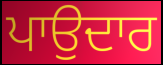
ਪਾਉਦਾਰ